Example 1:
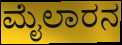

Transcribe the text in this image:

ಮೈಲಾರನ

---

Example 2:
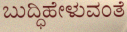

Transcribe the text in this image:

ಬುದ್ಧಿಹೇಳುವಂತೆ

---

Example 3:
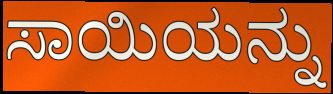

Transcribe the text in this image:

ಸಾಯಿಯನ್ನು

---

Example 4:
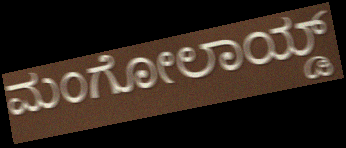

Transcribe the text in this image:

ಮಂಗೋಲಾಯ್ಡ್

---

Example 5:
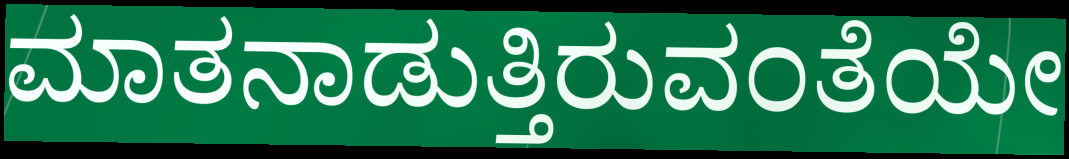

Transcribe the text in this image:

ಮಾತನಾಡುತ್ತಿರುವಂತೆಯೇ